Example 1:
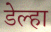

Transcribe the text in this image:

डेल्हा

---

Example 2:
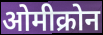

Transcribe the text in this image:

ओमीक्रोन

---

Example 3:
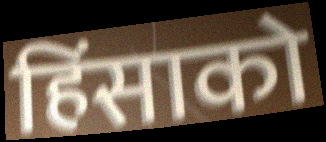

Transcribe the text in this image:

हिंसाको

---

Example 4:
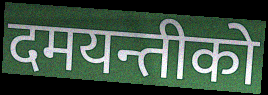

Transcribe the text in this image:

दमयन्तीको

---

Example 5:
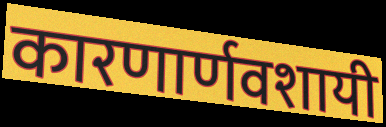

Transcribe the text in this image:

कारणार्णवशायी